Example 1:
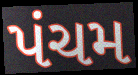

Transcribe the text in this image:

પંચમ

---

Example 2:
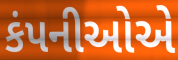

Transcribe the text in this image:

કંપનીઓએ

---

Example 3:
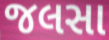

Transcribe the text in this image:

જલસા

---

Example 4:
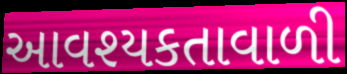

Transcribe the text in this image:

આવશ્યકતાવાળી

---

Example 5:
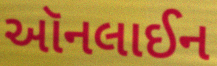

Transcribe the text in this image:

ઑનલાઈન